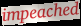
impeached